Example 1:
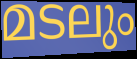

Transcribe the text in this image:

മടലും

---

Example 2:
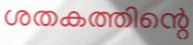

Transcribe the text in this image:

ശതകത്തിന്റെ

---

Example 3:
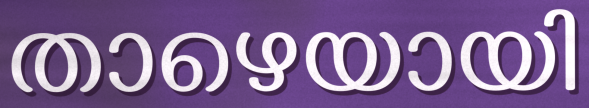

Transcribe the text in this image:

താഴെയായി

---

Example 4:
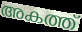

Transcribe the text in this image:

അകത്ത്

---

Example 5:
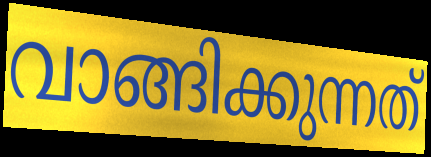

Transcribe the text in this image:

വാങ്ങിക്കുന്നത്